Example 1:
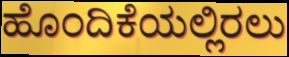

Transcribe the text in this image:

ಹೊಂದಿಕೆಯಲ್ಲಿರಲು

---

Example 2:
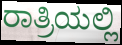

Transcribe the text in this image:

ರಾತ್ರಿಯಲ್ಲಿ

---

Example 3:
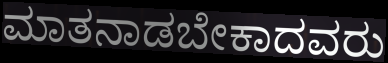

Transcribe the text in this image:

ಮಾತನಾಡಬೇಕಾದವರು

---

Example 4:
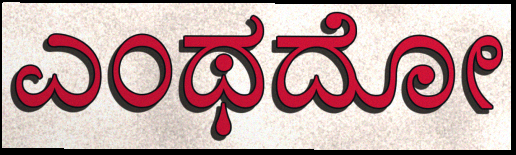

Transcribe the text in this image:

ಎಂಥದೋ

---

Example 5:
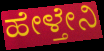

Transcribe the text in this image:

ಹೇಳ್ತೇನಿ